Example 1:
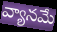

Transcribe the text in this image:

వ్యానమే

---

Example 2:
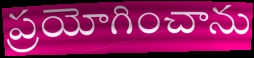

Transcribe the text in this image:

ప్రయోగించాను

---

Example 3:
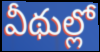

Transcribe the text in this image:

వీథుల్లో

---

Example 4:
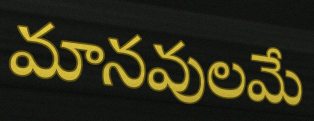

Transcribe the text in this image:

మానవులమే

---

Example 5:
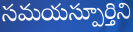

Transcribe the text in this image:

సమయస్పూర్తిని